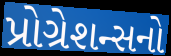
પ્રોગ્રેશન્સનો